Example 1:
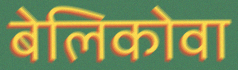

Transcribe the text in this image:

बेलिकोवा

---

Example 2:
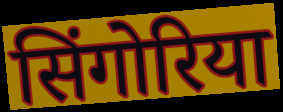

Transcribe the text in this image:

सिंगोरिया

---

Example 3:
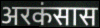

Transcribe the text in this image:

अरकंसास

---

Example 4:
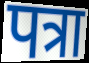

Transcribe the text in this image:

पत्रा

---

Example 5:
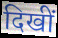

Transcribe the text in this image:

दिखीं